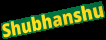
Shubhanshu